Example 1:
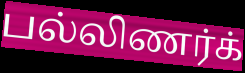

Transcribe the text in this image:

பல்லிணர்க்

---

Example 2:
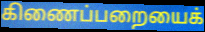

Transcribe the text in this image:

கிணைப்பறையைக்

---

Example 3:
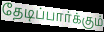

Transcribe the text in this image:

தேடிப்பார்க்கும்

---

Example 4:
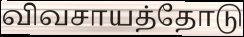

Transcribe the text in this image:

விவசாயத்தோடு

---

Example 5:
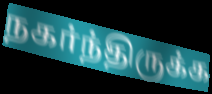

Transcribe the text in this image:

நகர்ந்திருக்க